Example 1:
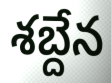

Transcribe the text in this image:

శబ్దేన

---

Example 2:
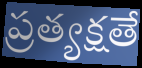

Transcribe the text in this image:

ప్రత్యక్షతే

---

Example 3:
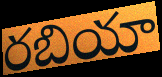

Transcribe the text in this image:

రబియా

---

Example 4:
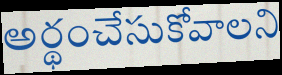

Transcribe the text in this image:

అర్థంచేసుకోవాలని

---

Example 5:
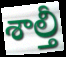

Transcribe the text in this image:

శాల్తీ